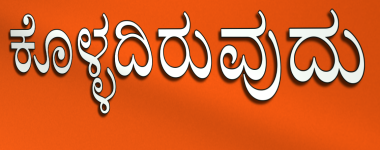
ಕೊಳ್ಳದಿರುವುದು